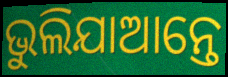
ଭୁଲିଯାଆନ୍ତେ